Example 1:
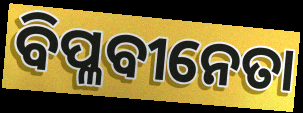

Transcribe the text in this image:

ବିପ୍ଳବୀନେତା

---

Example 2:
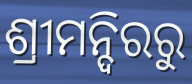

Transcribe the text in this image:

ଶ୍ରୀମନ୍ଦିରରୁ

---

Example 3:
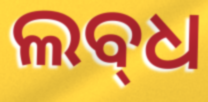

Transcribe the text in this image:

ଲବ୍‍ଧ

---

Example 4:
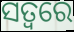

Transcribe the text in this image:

ସତ୍ଵରେ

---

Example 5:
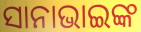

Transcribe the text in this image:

ସାନାଭାଇଙ୍କ